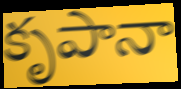
కృపానా